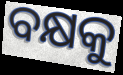
ବକ୍ଷକୁ